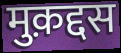
मुक़द्दस